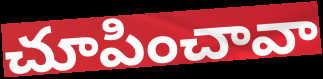
చూపించావా